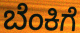
ಬೆಂಕಿಗೆ